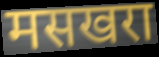
मसखरा